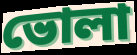
ভোলা